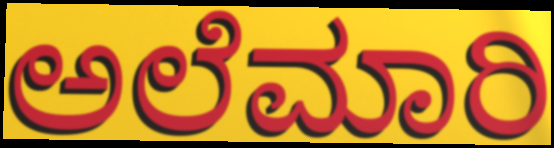
ಅಲೆಮಾರಿ